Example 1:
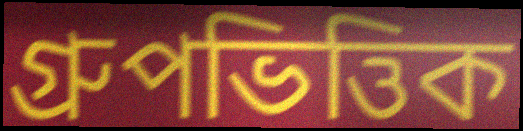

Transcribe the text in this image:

গ্রুপভিত্তিক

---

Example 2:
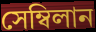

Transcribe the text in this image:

সেম্বিলান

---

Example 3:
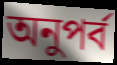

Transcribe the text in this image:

অনুপর্ব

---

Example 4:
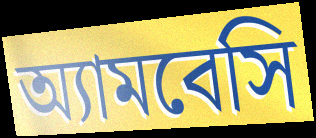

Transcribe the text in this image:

অ্যামবেসি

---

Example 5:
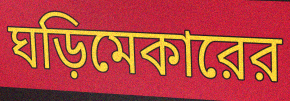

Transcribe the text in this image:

ঘড়িমেকারের